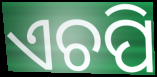
ଏଚପି